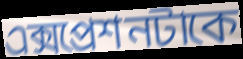
এক্সপ্রেশনটাকে